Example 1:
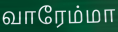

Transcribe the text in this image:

வாரேம்மா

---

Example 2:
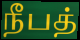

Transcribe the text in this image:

நீபத்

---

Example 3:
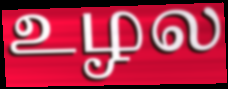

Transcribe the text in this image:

உழல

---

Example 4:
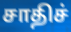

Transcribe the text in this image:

சாதிச்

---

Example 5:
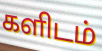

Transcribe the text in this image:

களிடம்